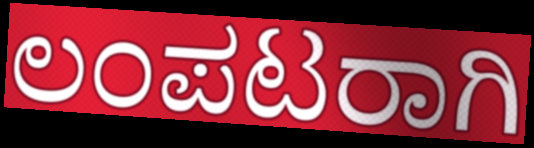
ಲಂಪಟರಾಗಿ